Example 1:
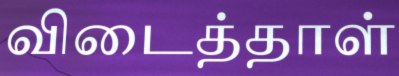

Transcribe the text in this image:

விடைத்தாள்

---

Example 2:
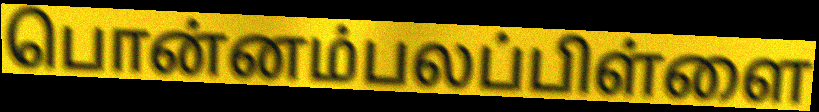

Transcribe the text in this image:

பொன்னம்பலப்பிள்ளை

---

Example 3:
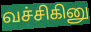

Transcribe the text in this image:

வச்சிகினு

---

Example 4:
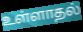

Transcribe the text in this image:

உள்ளாதல்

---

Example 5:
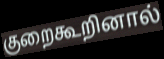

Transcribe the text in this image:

குறைகூறினால்